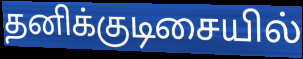
தனிக்குடிசையில்